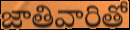
జాతివారితో